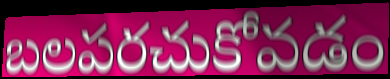
బలపరచుకోవడం